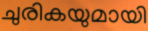
ചുരികയുമായി